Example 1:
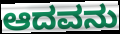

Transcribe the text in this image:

ಆದವನು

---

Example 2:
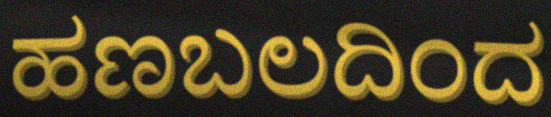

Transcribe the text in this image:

ಹಣಬಲದಿಂದ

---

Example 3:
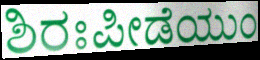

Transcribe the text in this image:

ಶಿರಃಪೀಡೆಯುಂ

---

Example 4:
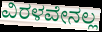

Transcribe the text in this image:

ವಿರಳವೇನಲ್ಲ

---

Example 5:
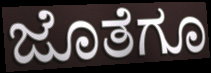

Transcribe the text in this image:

ಜೊತೆಗೂ